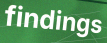
findings